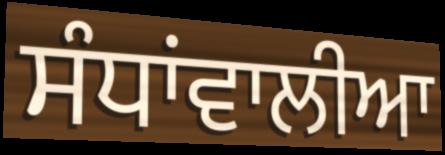
ਸੰਧਾਂਵਾਲੀਆ